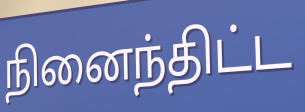
நினைந்திட்ட